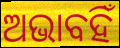
ଅଭାବହିଁ